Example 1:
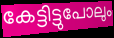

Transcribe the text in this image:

കേട്ടിട്ടുപോലും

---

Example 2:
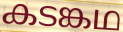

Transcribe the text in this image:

കടങ്കഥ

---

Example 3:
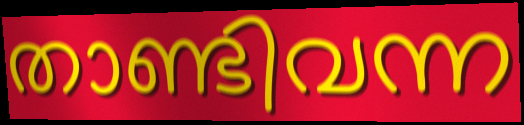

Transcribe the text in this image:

താണ്ടിവന്ന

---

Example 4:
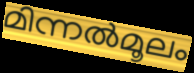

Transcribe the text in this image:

മിന്നൽമൂലം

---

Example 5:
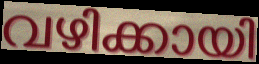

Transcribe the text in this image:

വഴിക്കായി